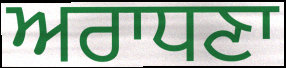
ਅਰਾਧਣਾ